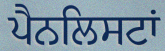
ਪੈਨਲਿਸਟਾਂ